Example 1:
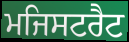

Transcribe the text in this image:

ਮਜਿਸਟਰੈਟ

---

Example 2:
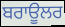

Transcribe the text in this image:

ਬਰਾਊਲਰ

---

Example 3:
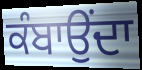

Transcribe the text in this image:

ਕੰਬਾਉਂਦਾ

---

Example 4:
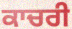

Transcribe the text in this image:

ਕਾਚਰੀ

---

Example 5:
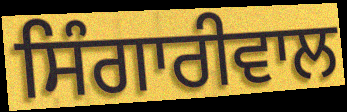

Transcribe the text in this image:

ਸਿੰਗਾਰੀਵਾਲ